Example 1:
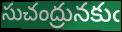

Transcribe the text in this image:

సుచంద్రునకుఁ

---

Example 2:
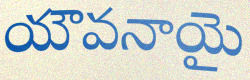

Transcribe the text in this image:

యౌవనాయై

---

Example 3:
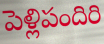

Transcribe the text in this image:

పెళ్లిపందిరి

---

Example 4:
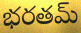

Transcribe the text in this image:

భరతమ్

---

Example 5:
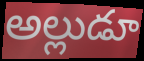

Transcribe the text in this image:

అల్లుడూ